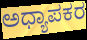
ಅಧ್ಯಾಪಕರ